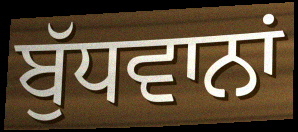
ਬੁੱਧਵਾਨਾਂ